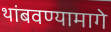
थांबवण्यामागे